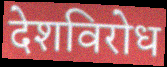
देशविरोध